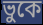
ভুকে